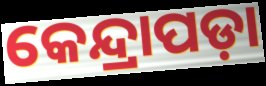
କେନ୍ଦ୍ରାପଡ଼ା